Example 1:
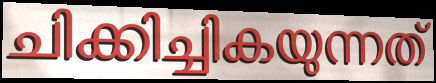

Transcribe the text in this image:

ചിക്കിച്ചികയുന്നത്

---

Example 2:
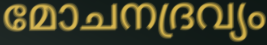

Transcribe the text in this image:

മോചനദ്രവ്യം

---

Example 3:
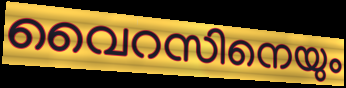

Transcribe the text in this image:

വൈറസിനെയും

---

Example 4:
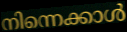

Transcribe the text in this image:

നിന്നെക്കാൾ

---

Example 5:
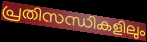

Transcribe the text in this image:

പ്രതിസന്ധികളിലും